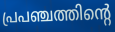
പ്രപഞ്ചത്തിന്റെ